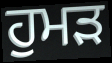
ਹੁਮੜ